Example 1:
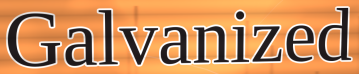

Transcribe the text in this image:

Galvanized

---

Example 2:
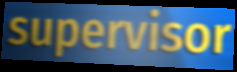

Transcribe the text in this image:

supervisor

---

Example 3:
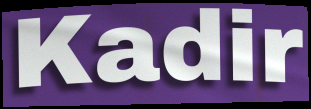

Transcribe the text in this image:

Kadir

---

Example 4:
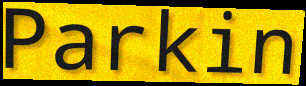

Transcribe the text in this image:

Parkin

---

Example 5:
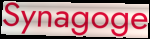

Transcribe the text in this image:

Synagoge